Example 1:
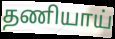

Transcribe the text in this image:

தணியாய்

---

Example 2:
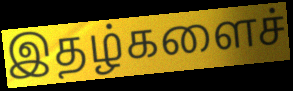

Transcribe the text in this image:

இதழ்களைச்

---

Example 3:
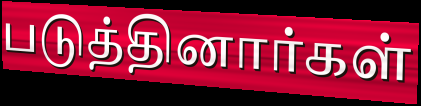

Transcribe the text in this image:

படுத்தினார்கள்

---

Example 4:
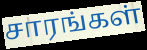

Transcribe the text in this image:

சாரங்கள்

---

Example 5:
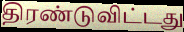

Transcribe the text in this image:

திரண்டுவிட்டது